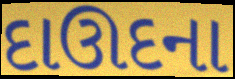
દાઊદના